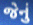
જેનું